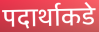
पदार्थाकडे